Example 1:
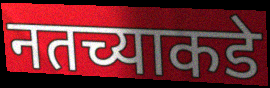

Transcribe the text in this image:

नतच्याकडे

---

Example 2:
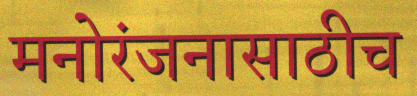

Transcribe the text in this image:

मनोरंजनासाठीच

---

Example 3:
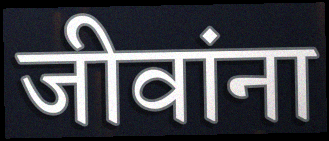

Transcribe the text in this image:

जीवांना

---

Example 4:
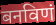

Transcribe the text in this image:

बनविणं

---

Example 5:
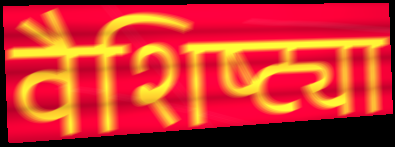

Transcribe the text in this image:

वैशिष्ट्या